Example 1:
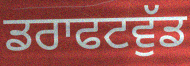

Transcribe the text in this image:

ਡਰਾਫਟਵੁੱਡ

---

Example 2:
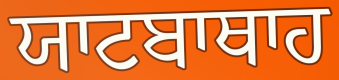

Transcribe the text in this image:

ਯਾਟਬਾਥਾਹ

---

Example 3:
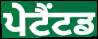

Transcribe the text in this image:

ਪੇਟੈਂਟਡ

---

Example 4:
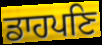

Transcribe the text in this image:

ਡਾਹਪਣਿ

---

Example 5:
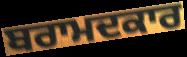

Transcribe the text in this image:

ਬਰਾਮਦਕਾਰ